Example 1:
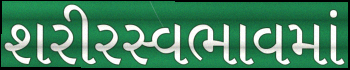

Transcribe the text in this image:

શરીરસ્વભાવમાં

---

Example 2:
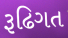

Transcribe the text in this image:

રૂઢિગત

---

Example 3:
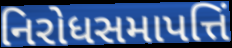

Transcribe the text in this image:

નિરોધસમાપત્તિં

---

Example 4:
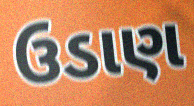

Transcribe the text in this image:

ઉડાણ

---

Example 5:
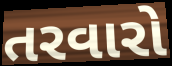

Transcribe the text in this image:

તરવારો